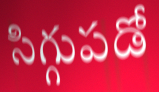
సిగ్గుపడో